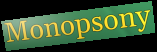
Monopsony